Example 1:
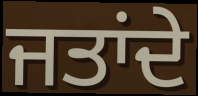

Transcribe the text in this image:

ਜਤਾਂਦੇ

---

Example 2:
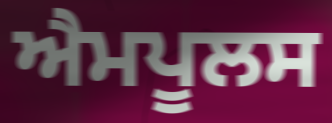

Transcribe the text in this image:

ਐਮਪੂਲਸ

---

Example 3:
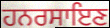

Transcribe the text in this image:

ਹਨਰਸਾਇਣ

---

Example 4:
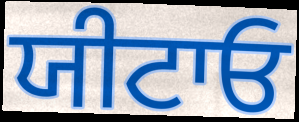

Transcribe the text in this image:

ਯੀਟਾਓ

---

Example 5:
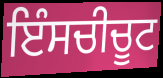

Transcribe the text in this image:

ਇੰਸਚੀਚੂਟ